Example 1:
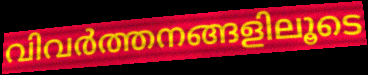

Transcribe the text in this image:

വിവർത്തനങ്ങളിലൂടെ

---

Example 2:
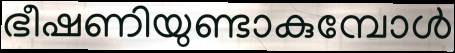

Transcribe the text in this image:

ഭീഷണിയുണ്ടാകുമ്പോൾ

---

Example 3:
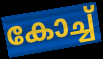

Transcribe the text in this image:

കോച്ച്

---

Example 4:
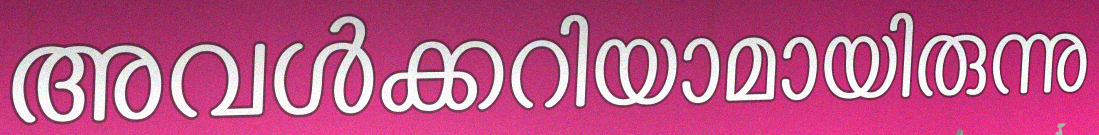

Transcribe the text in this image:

അവൾക്കറിയാമായിരുന്നു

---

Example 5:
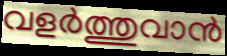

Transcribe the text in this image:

വളർത്തുവാൻ